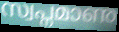
സ്വപ്നമാണു